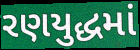
રણયુદ્ધમાં